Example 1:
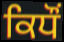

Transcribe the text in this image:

ਕਿਧੌਂ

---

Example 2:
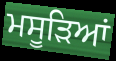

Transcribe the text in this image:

ਮਸੂੜਿਆਂ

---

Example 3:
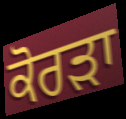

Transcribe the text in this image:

ਕੋਰੜਾ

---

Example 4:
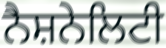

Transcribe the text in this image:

ਨੈਸ਼ਨੇਲਿਟੀ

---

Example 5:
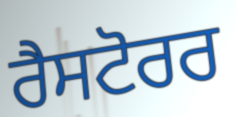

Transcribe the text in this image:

ਰੈਸਟੋਰਰ